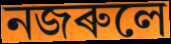
নজৰুলে